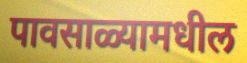
पावसाळ्यामधील